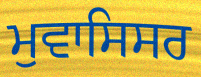
ਮੁਵਾਸਿਸਰ